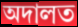
অদালত